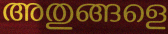
അതുങ്ങളെ